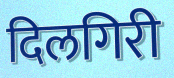
दिलगिरी